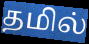
தமில்